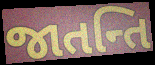
જાતન્તિ